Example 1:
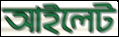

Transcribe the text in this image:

আইলেট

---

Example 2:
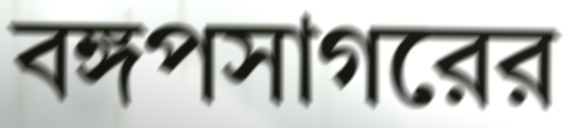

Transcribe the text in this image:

বঙ্গপসাগরের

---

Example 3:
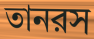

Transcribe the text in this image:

তানরস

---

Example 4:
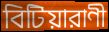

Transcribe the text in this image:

বিটিয়ারাণী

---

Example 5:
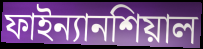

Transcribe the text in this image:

ফাইন্যানশিয়াল